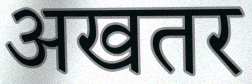
अखतर